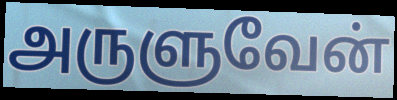
அருளுவேன்